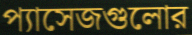
প্যাসেজগুলোর